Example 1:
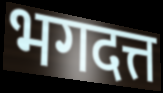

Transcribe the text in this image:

भगदत्त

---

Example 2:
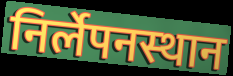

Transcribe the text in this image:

निर्लेपनस्थान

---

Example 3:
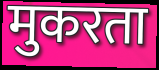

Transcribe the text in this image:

मुकरता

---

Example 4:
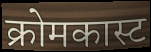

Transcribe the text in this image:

क्रोमकास्ट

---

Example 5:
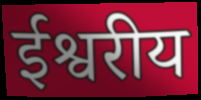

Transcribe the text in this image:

ईश्वरीय